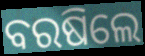
ବରଷିଲେ